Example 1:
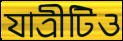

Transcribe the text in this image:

যাত্রীটিও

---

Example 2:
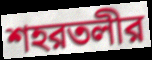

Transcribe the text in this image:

শহরতলীর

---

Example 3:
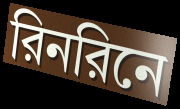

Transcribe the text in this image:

রিনরিনে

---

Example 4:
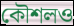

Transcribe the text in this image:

কৌশলও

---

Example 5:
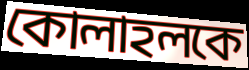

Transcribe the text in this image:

কোলাহলকে